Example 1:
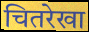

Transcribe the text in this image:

चितरेखा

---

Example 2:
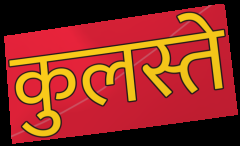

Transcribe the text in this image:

कुलस्ते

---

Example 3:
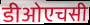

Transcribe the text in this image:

डीओएचसी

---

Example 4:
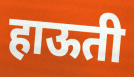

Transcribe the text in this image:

हाऊती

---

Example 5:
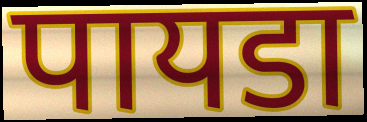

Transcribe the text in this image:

पायडा